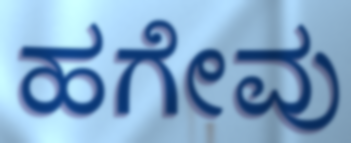
ಹಗೇವು